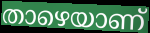
താഴെയാണ്